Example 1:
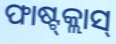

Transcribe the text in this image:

ଫାଷ୍ଟ୍‍କ୍ଲାସ୍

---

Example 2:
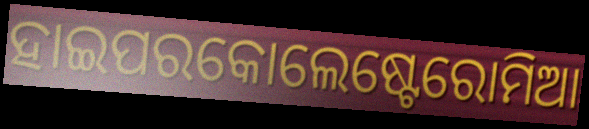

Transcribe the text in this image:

ହାଇପରକୋଲେଷ୍ଟେରୋମିଆ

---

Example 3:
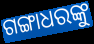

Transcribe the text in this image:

ଗଙ୍ଗାଧରଙ୍କୁ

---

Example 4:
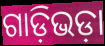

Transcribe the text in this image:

ଗାଡ଼ିଭଡ଼ା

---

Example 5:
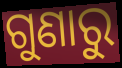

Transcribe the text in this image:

ଗୁଣାରୁ